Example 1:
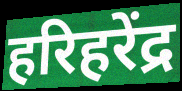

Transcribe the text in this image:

हरिहरेंद्र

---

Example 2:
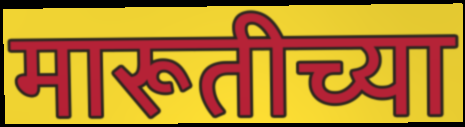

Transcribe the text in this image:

मारूतीच्या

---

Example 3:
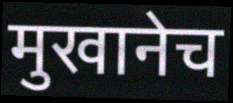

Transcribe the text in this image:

मुखानेच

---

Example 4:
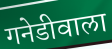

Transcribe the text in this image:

गनेडीवाला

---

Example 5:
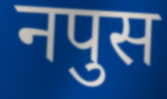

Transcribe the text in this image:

नपुस